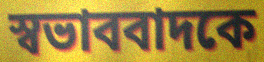
স্বভাববাদকে